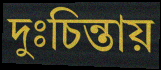
দুঃচিন্তায়